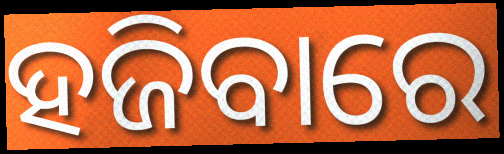
ହଜିବାରେ